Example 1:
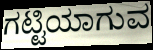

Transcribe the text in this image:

ಗಟ್ಟಿಯಾಗುವ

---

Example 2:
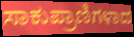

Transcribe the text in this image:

ಸಾಕುಪ್ರಾಣಿಗಳಾದ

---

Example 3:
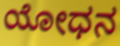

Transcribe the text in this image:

ಯೋಧನ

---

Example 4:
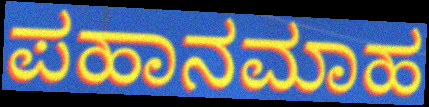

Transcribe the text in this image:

ಪಹಾನಮಾಹ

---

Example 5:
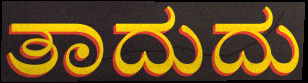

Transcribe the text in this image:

ತಾದುದು